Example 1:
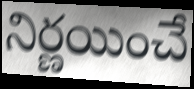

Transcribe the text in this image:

నిర్ణయించే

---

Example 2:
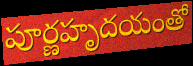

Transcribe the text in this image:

పూర్ణహృదయంతో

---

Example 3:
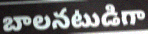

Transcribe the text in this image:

బాలనటుడిగా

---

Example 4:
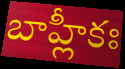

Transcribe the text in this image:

బాహ్లీకః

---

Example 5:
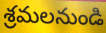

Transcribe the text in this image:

శ్రమలనుండి